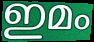
ഇമം